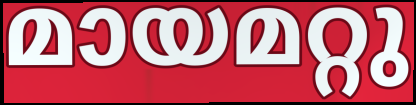
മായമറ്റു